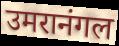
उमरानंगल